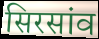
सिरसांव